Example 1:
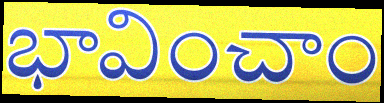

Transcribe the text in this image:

భావించాం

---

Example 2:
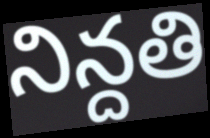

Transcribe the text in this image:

నిన్దతి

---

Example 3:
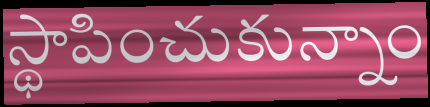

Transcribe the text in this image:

స్థాపించుకున్నాం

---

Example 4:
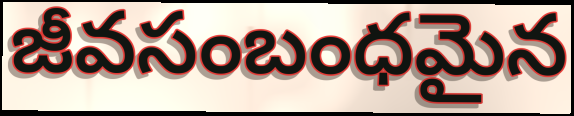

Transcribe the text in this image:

జీవసంబంధమైన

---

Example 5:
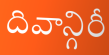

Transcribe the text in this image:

దివాన్గిరీ